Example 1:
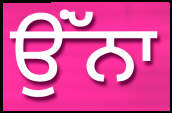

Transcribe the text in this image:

ਉਂੱਨਾ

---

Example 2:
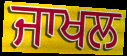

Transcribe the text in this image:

ਜਾਖਲ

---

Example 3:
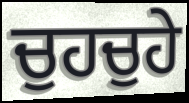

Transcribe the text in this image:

ਚੁਹਚੁਹੇ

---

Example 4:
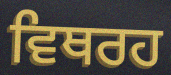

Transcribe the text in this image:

ਵਿਥਰਹ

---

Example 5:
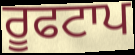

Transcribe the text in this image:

ਰੂਫਟਾਪ